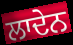
ਲਾਦੇਨ